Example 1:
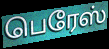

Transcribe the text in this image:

பெரேஸ்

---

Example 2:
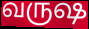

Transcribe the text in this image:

வருஷ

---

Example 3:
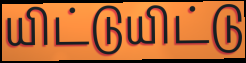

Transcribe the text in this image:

யிட்டுயிட்டு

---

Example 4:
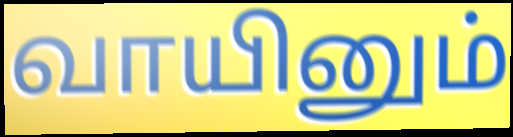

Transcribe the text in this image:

வாயினும்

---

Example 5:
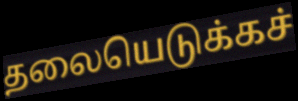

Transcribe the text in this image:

தலையெடுக்கச்